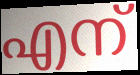
എന്